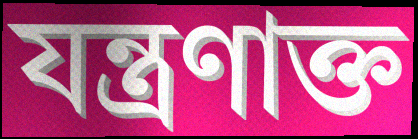
যন্ত্রণাক্ত